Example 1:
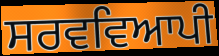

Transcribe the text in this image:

ਸਰਵਵਿਆਪੀ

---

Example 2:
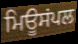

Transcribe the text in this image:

ਮਿਊਸਂਪਲ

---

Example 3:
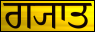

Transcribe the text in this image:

ਗ੍ਯਾਤ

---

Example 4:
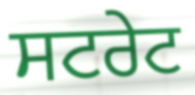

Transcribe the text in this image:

ਸਟਰੇਟ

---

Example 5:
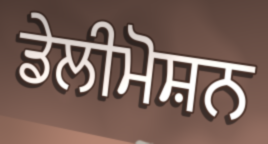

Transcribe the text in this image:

ਡੇਲੀਮੋਸ਼ਨ